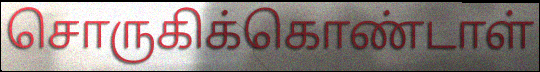
சொருகிக்கொண்டாள்